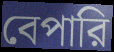
বেপারি